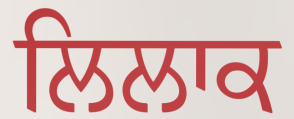
ਲਿਲਾਕ